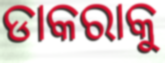
ଡାକରାକୁ